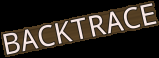
BACKTRACE